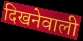
दिखनेवाली